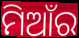
ମିଆଁର